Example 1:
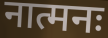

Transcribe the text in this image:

नात्मनः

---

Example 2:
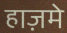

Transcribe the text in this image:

हाज़मे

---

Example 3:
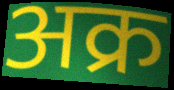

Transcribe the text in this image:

अक्र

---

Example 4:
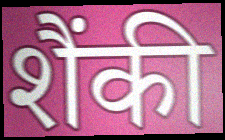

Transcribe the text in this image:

शैंकी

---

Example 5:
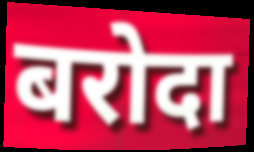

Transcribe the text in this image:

बरोदा